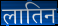
लातिन